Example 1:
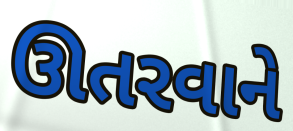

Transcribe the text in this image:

ઊતરવાને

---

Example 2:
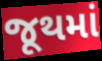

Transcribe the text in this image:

જૂથમાં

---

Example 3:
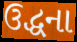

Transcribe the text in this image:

ઉદ્ધના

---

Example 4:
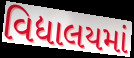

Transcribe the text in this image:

વિદ્યાલયમાં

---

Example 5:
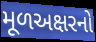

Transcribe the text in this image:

મૂળઅક્ષરનો